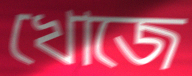
খোজে